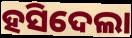
ହସିଦେଲା